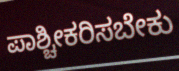
ಪಾಶ್ಚೀಕರಿಸಬೇಕು